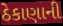
ઠેકાણાની